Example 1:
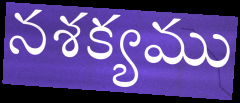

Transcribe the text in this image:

నశక్యము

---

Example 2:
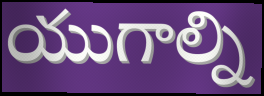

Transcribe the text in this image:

యుగాల్ని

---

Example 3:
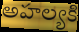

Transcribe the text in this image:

అహల్యకి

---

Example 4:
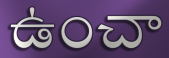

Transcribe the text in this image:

ఉంచా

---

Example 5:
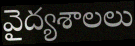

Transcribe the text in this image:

వైద్యశాలలు